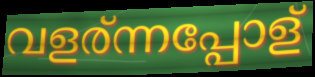
വളര്ന്നപ്പോള്